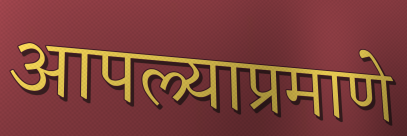
आपल्याप्रमाणे